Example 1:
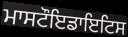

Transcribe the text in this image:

ਮਾਸਟੌਇਡਾਇਟਿਸ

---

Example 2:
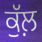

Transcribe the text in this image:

ਕੁੱਲ਼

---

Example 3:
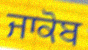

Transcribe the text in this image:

ਜਾਕੋਬ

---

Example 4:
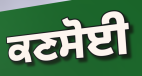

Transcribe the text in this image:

ਕਣਸੋਈ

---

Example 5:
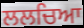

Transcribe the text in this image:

ਲਲਚਿਆ